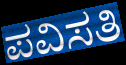
ಪವಿಸತಿ